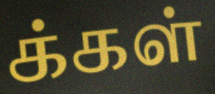
க்கள்